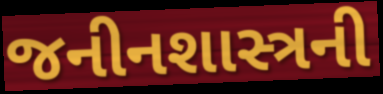
જનીનશાસ્ત્રની